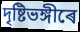
দৃষ্টিভঙ্গীৰে